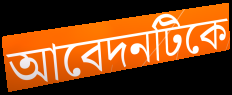
আবেদনটিকে